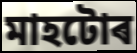
মাহটোৰ